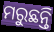
ମରୁଛନ୍ତି